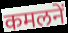
कमलनें